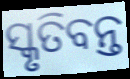
ସ୍କୃତିବନ୍ତ